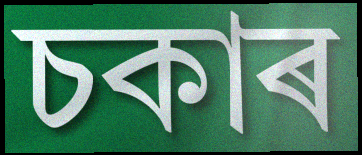
চকাৰ